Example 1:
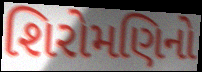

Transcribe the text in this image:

શિરોમણિનો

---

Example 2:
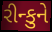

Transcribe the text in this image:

રીન્કુને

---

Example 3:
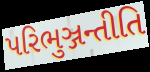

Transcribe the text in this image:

પરિભુઞ્જન્તીતિ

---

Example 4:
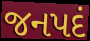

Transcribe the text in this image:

જનપદં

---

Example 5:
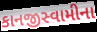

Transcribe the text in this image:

કાનજીસ્વામીના